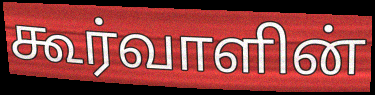
கூர்வாளின்